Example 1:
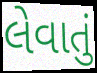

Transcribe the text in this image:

લેવાતું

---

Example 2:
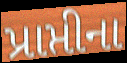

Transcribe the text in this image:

પ્રાપ્તીના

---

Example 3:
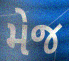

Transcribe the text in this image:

મેજ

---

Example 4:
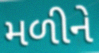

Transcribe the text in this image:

મળીને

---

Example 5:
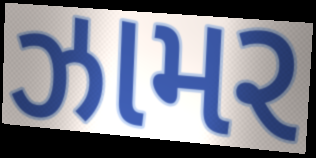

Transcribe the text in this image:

ઝામર